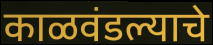
काळवंडल्याचे